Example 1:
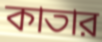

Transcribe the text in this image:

কাতার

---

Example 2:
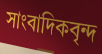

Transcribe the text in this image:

সাংবাদিকবৃন্দ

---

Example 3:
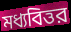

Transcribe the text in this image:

মধ্যবিত্তর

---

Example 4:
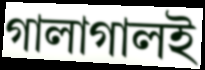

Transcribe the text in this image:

গালাগালই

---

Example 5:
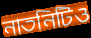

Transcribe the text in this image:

নাতনিটিও